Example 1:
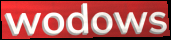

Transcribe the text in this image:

wodows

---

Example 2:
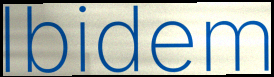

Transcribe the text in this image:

Ibidem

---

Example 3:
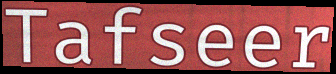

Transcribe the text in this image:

Tafseer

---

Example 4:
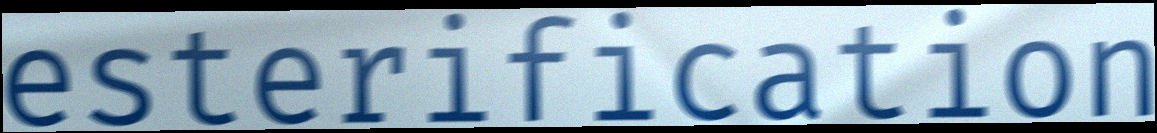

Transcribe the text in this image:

esterification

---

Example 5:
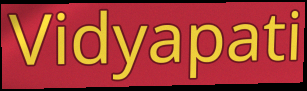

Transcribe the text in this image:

Vidyapati